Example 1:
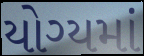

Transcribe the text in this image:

યોગ્યમાં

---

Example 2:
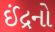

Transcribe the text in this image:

ઈંદ્રનો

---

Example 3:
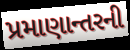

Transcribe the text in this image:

પ્રમાણાન્તરની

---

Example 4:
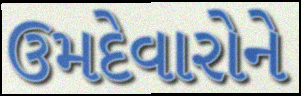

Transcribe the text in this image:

ઉમદેવારોને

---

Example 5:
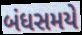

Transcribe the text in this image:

બંધસમયે